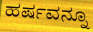
ಹರ್ಷವನ್ನೂ